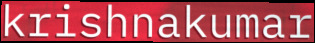
krishnakumar